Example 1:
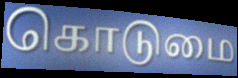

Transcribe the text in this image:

கொடுமை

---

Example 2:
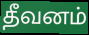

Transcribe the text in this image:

தீவனம்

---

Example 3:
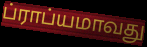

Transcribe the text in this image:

ப்ராப்யமாவது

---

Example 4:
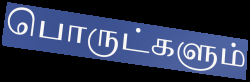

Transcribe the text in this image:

பொருட்களும்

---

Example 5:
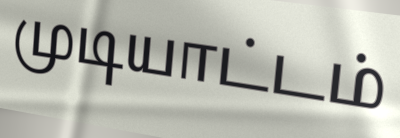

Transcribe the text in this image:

முடியாட்டம்